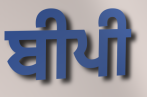
ਬੀਪੀ